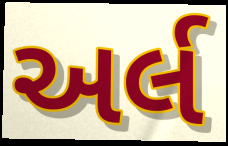
અર્લ